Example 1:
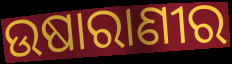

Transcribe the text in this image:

ଉଷାରାଣୀର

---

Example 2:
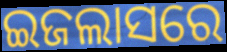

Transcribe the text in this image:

ଇଜଲାସରେ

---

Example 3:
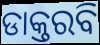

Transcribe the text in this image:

ଡାକ୍ତରବି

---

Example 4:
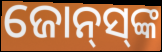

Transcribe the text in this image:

ଜୋନ୍‌ସ୍‌ଙ୍କ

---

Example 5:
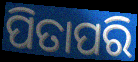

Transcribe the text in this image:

ପିତାପରି